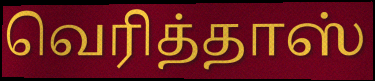
வெரித்தாஸ்